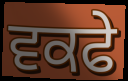
ਵਕਫੇ